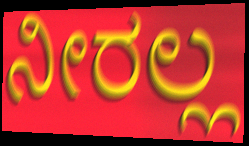
ನೀರಲ್ಲ